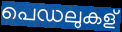
പെഡലുകള്